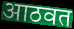
आठवत